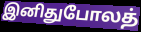
இனிதுபோலத்